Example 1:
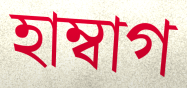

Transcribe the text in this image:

হাম্বাগ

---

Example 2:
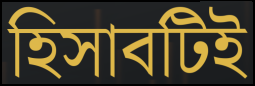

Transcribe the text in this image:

হিসাবটিই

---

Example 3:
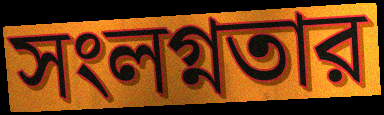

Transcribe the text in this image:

সংলগ্নতার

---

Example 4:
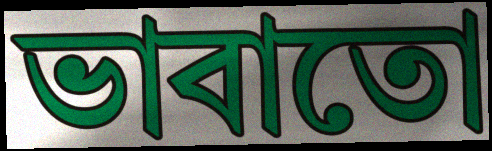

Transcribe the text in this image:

ভাবাতো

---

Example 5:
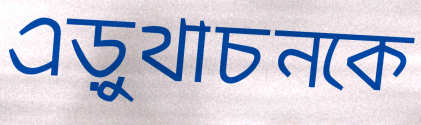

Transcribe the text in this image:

এড়ুথাচনকে